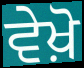
ਵੇਖ਼ੋ